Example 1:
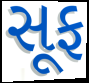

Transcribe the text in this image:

સૂફ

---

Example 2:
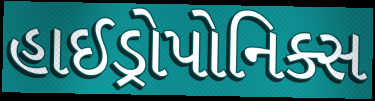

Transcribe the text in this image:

હાઈડ્રોપોનિક્સ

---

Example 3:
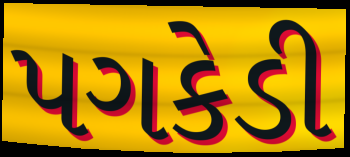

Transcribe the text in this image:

પગકેડી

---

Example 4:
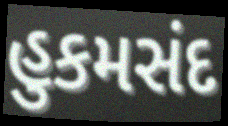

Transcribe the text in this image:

હુકમસંદ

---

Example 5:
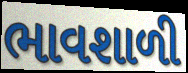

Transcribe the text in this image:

ભાવશાળી